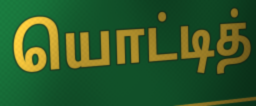
யொட்டித்